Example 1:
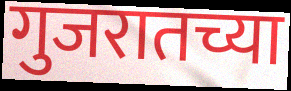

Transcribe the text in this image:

गुजरातच्या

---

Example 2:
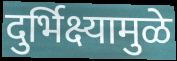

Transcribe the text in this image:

दुर्भिक्ष्यामुळे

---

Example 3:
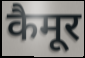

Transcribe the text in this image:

कैमूर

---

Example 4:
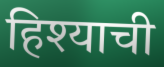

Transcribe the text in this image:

हिश्याची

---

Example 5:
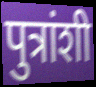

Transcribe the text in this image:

पुत्रांशी